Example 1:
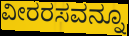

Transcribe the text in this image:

ವೀರರಸವನ್ನೂ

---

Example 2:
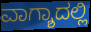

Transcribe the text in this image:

ವಾಗ್ಶಾದಲ್ಲಿ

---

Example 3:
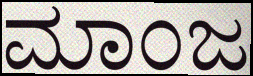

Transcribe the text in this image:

ಮಾಂಜ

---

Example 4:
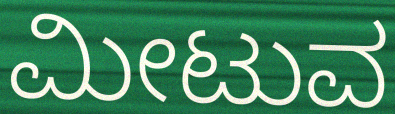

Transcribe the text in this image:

ಮೀಟುವ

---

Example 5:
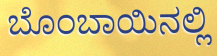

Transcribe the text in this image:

ಬೊಂಬಾಯಿನಲ್ಲಿ